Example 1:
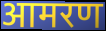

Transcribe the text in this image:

आमरण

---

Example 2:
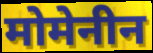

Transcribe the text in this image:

मोमेनीन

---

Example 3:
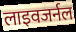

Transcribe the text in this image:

लाइवजर्नल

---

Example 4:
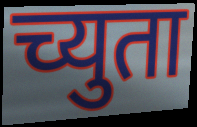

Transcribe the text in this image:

च्युता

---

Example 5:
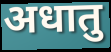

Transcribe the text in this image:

अधातु